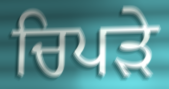
ਚਿਪੜੇ